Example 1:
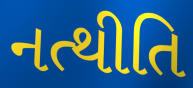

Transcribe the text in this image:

નત્થીતિ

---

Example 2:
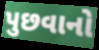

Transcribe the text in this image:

પુછવાનો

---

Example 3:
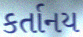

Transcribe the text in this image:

કર્તાનય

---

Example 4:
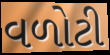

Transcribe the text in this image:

વળોટી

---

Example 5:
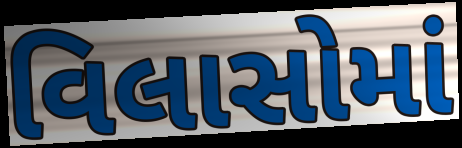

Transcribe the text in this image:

વિલાસોમાં